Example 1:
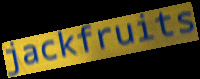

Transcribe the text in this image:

jackfruits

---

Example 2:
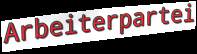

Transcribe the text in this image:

Arbeiterpartei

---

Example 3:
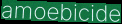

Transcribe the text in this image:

amoebicide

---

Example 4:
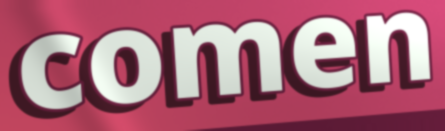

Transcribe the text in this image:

comen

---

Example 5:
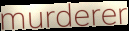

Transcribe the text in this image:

murderer